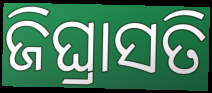
ଜିଘ୍ରାସତି